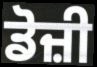
ਡੋਜ਼ੀ